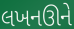
લખનઊને